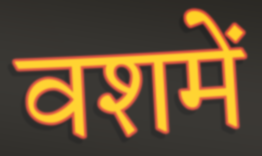
वशमें